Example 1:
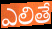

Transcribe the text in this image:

ఎలితే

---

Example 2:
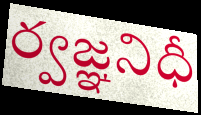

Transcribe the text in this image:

ర్వజ్ఞనిధీ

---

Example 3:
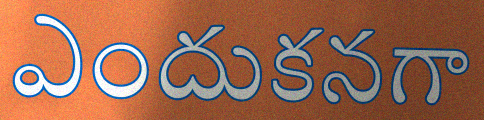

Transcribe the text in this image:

ఎందుకనగా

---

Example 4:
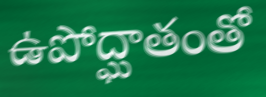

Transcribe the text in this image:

ఉపోద్ఘాతంతో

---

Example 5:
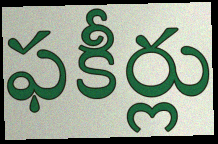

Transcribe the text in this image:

ఫకీర్లు